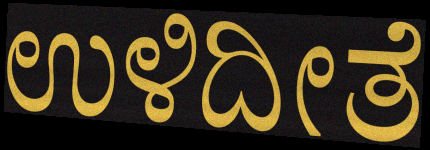
ಉಳಿದೀತೆ